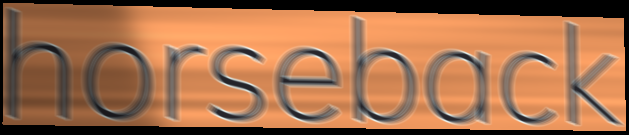
horseback